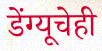
डेंग्यूचेही